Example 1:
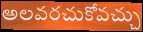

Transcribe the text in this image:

అలవరచుకోవచ్చు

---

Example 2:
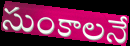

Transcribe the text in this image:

సుంకాలనే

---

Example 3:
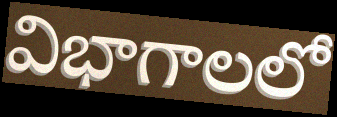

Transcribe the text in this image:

విభాగాలలో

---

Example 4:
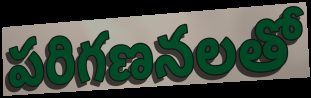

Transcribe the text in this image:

పరిగణనలతో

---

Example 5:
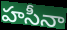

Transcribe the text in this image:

హసీనా